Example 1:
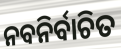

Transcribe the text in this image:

ନବନିର୍ବାଚିତ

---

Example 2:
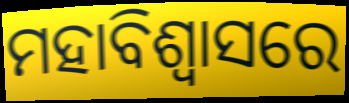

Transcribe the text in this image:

ମହାବିଶ୍ୱାସରେ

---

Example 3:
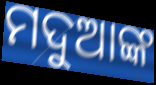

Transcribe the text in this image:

ମଦୁଆଙ୍କ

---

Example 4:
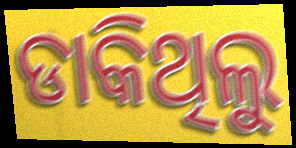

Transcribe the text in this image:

ଡାକିଥିଲୁ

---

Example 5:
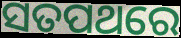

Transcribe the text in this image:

ସତପଥରେ